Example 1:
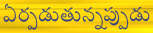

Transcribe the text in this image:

ఏర్పడుతున్నప్పుడు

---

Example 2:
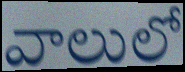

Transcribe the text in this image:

వాలులో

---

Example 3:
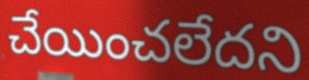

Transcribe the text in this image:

చేయించలేదని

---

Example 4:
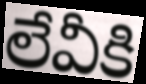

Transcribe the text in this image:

లేవీకి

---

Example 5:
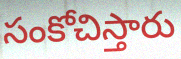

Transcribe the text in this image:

సంకోచిస్తారు